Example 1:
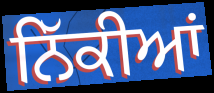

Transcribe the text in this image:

ਨਿੱਕੀਆਂ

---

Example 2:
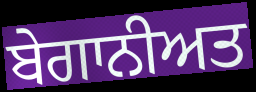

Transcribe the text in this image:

ਬੇਗਾਨੀਅਤ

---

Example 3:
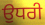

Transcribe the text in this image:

ਉਧਰੀ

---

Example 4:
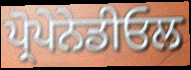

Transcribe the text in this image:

ਪ੍ਰੋਪੇਨੇਡੀਓਲ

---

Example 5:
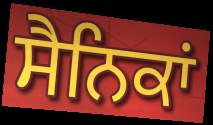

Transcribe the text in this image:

ਸੈਨਿਕਾਂ